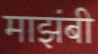
माझंबी